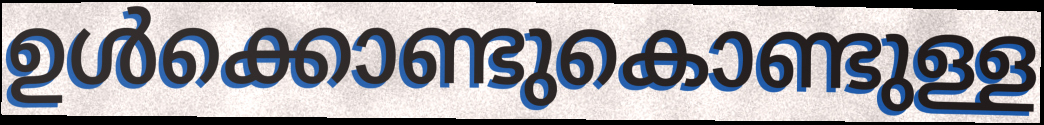
ഉൾക്കൊണ്ടുകൊണ്ടുള്ള